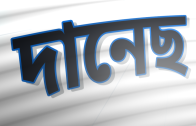
দানেছ